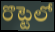
రొట్టెలో